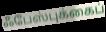
ஃபேஸ்புக்கைப்